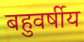
बहुवर्षीय